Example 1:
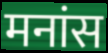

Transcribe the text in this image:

मनांस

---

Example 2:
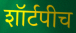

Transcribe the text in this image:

शॉर्टपीच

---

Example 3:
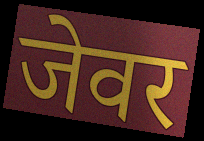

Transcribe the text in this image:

जेवर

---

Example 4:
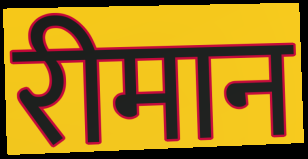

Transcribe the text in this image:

रीमान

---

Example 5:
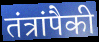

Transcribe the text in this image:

तंत्रांपैकी